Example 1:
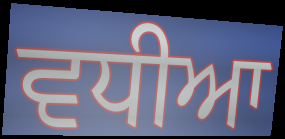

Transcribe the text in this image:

ਵਧੀਆ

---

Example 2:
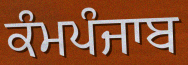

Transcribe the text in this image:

ਕੰਮਪੰਜਾਬ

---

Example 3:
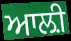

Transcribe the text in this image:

ਆਲ਼ੀ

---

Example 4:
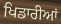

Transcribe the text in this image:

ਖਿਡਾਰੀਆਂ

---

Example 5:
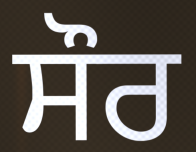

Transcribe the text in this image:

ਸੌਰ